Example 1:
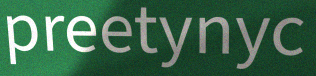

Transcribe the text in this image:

preetynyc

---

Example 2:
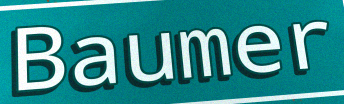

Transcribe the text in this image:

Baumer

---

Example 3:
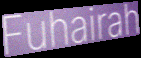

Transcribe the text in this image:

Fuhairah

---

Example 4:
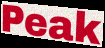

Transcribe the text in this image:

Peak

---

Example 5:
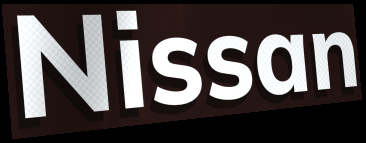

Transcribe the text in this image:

Nissan